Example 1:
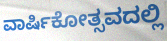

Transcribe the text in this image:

ವಾರ್ಷಿಕೋತ್ಸವದಲ್ಲಿ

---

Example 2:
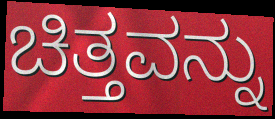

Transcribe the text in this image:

ಚಿತ್ತವನ್ನು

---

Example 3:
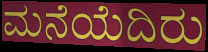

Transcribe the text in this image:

ಮನೆಯೆದಿರು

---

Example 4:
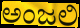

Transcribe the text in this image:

ಅಂಜಲಿ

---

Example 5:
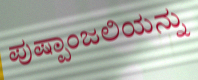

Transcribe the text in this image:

ಪುಷ್ಪಾಂಜಲಿಯನ್ನು